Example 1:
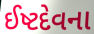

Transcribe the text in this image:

ઈષ્ટદેવના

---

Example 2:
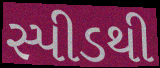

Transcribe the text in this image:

સ્પીડથી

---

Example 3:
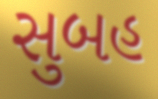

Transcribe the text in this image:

સુબહ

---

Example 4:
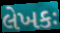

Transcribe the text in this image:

લેખકઃ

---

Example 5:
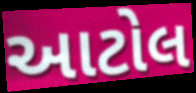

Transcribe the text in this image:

આટોલ